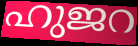
ഹുജറ